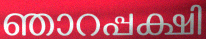
ഞാറപ്പക്ഷി